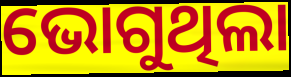
ଭୋଗୁଥିଲା